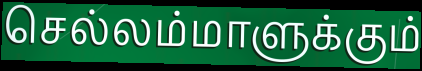
செல்லம்மாளுக்கும்